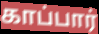
காப்பார்